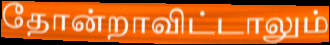
தோன்றாவிட்டாலும்